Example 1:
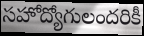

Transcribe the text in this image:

సహోద్యోగులందరికీ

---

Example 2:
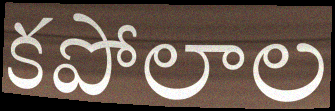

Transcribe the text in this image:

కపోలాల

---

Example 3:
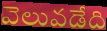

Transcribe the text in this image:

వెలువడేది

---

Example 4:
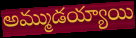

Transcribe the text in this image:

అమ్ముడయ్యాయి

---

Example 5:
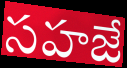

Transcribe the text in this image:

సహజే